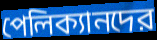
পেলিক্যানদের